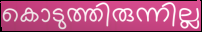
കൊടുത്തിരുന്നില്ല